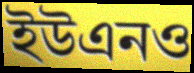
ইউএনও